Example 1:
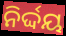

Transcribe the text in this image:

ନିର୍ଦ୍ଦୟ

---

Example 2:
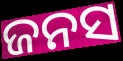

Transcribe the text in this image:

ଜନସ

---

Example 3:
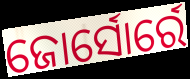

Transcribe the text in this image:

ଜୋର୍ସୋର୍ରେ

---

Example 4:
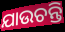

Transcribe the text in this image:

ଯାଉଚନ୍ତି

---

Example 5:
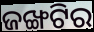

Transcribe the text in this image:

ଜଙ୍ଖଟିର